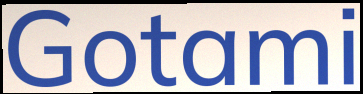
Gotami